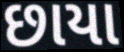
છાયા